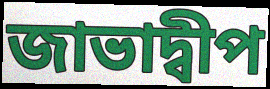
জাভাদ্বীপ